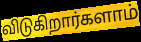
விடுகிறார்களாம்